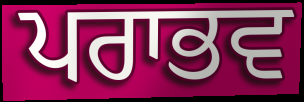
ਪਰਾਭਵ